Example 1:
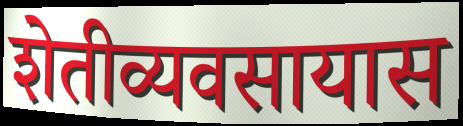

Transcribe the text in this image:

शेतीव्यवसायास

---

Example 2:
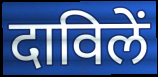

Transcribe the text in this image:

दाविलें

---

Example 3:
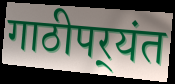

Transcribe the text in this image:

गाठीपर्यंत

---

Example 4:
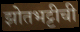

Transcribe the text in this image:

झोतभट्टीची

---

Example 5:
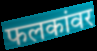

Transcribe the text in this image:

फलकांवर